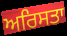
ਅਰਿਸਤਾ